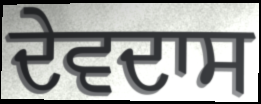
ਦੇਵਦਾਸ